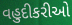
વહુદીકરીઓ